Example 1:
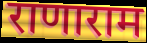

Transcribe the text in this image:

राणाराम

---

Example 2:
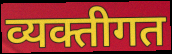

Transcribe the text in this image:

व्यक्तीगत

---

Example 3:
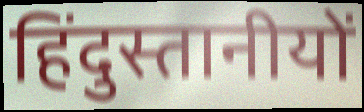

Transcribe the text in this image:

हिंदुस्तानीयों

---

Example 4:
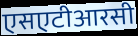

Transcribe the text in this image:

एसएटीआरसी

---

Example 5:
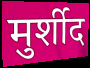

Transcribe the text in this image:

मुर्शीद